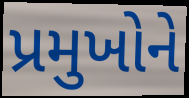
પ્રમુખોને